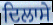
ਦਿਲਾਸੇ